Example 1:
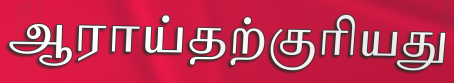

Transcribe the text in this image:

ஆராய்தற்குரியது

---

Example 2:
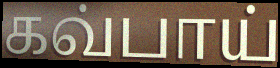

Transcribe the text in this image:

கவ்பாய்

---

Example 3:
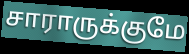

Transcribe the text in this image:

சாராருக்குமே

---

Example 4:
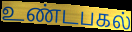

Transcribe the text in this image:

உண்டபகல்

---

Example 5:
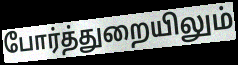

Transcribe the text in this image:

போர்த்துறையிலும்